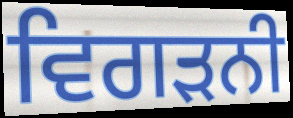
ਵਿਗੜਨੀ